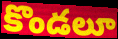
కొండలూ